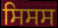
ਸਿਸਸ